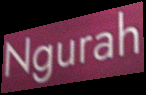
Ngurah